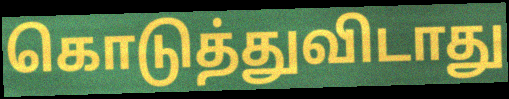
கொடுத்துவிடாது